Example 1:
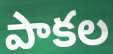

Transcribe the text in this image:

పాకల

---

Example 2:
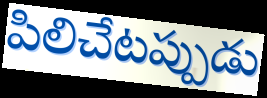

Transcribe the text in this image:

పిలిచేటప్పుడు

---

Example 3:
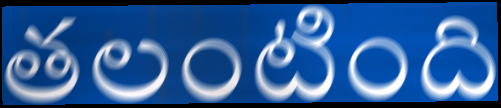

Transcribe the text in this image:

తలంటింది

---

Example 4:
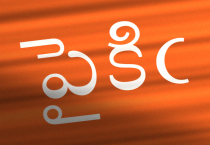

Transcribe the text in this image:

పైకిఁ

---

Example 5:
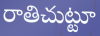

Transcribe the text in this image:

రాతిచుట్టూ